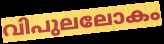
വിപുലലോകം